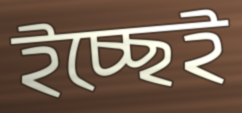
ইচ্ছেই